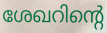
ശേഖറിന്റെ